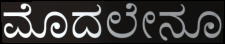
ಮೊದಲೇನೂ